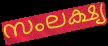
സംലക്ഷ്യ